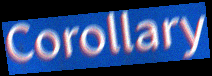
Corollary